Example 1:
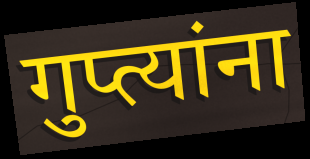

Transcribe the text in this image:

गुप्त्यांना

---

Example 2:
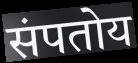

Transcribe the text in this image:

संपतोय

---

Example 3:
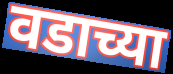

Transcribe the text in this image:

वडाच्या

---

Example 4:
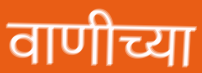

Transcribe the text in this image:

वाणीच्या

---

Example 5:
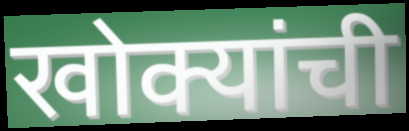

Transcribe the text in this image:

खोक्यांची